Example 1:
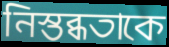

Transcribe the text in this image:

নিস্তব্ধতাকে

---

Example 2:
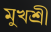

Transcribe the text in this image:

মুখশ্রী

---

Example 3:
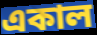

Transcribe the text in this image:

একাল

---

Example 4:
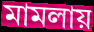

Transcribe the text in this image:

মামলায়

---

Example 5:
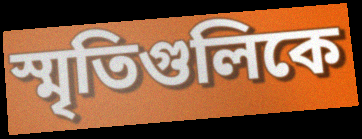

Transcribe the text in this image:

স্মৃতিগুলিকে